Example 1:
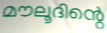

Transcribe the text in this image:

മൗലൂദിന്റെ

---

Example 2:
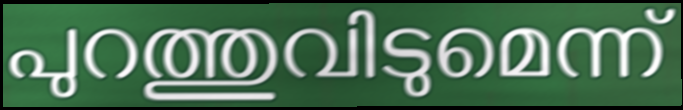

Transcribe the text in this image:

പുറത്തുവിടുമെന്ന്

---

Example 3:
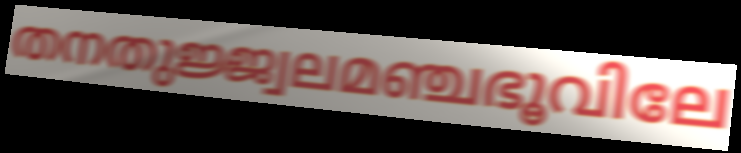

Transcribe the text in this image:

തനതുജ്ജ്വലമഞ്ചഭൂവിലേ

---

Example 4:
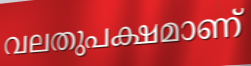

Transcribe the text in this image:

വലതുപക്ഷമാണ്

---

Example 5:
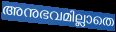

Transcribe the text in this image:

അനുഭവമില്ലാതെ